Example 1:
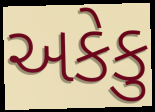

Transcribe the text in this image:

અકેકુ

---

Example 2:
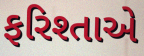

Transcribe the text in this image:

ફરિશ્તાએ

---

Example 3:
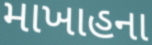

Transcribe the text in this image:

માખાહના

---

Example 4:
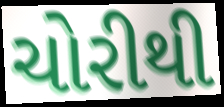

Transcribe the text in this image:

ચોરીથી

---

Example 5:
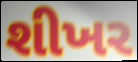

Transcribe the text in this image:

શીખર